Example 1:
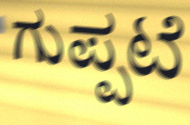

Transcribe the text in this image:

ಗುಪ್ಪಟೆ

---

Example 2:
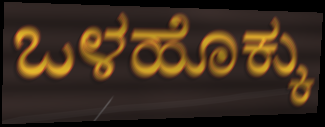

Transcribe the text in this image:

ಒಳಹೊಕ್ಕು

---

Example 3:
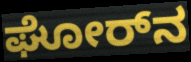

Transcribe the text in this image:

ಘೋರ್‌ನ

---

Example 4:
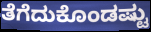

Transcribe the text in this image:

ತೆಗೆದುಕೊಂಡಷ್ಟು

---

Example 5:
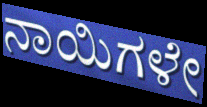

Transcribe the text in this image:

ನಾಯಿಗಳೇ